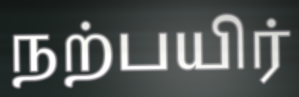
நற்பயிர்